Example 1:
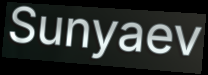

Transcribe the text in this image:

Sunyaev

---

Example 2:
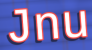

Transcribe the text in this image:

Jnu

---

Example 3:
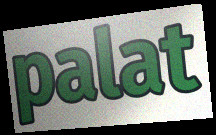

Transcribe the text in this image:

palat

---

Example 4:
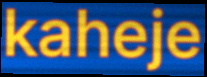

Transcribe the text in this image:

kaheje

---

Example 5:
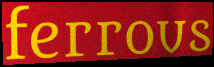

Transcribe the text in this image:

ferrous